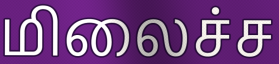
மிலைச்ச